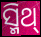
ସ୍ମିଥ୍